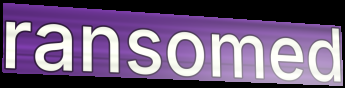
ransomed